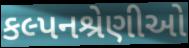
કલ્પનશ્રેણીઓ